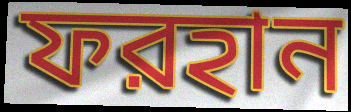
ফরহান